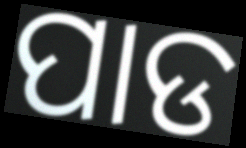
ପାଡ